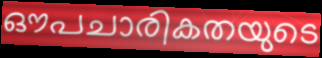
ഔപചാരികതയുടെ